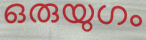
ഒരുയുഗം